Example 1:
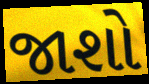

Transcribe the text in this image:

જાશો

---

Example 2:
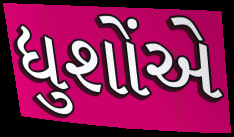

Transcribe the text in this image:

દ્યુશોંએ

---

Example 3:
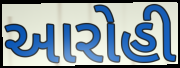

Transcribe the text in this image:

આરોહી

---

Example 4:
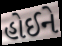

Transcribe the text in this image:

હોઈને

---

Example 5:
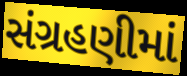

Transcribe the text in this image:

સંગ્રહણીમાં